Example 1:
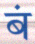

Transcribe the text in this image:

बं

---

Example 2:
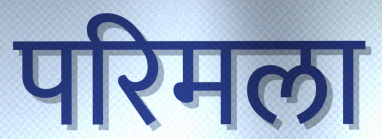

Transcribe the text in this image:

परिमला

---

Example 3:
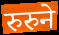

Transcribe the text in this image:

रुरुने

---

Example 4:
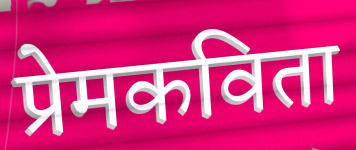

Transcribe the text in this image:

प्रेमकविता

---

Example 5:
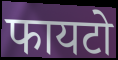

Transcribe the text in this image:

फायटो